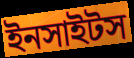
ইনসাইটস